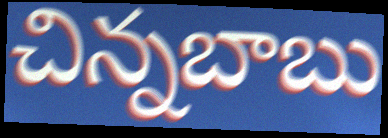
చిన్నబాబు